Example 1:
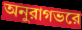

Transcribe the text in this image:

অনুরাগভরে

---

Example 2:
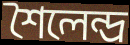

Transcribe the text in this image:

শৈলেন্দ্র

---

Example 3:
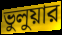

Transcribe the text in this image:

ভুলুয়ার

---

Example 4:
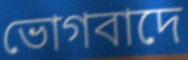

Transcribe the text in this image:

ভোগবাদে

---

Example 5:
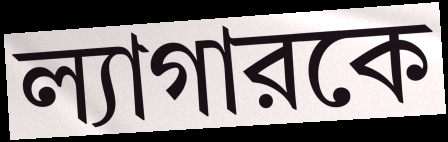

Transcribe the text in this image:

ল্যাগারকে